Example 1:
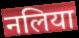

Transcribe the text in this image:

नलिया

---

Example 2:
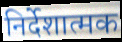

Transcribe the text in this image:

निर्देशात्मक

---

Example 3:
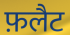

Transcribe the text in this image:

फ़लैट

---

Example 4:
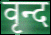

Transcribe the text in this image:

वृन्द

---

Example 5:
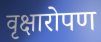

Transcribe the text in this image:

वृक्षारोपण